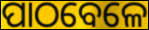
ପାଠବେଳେ